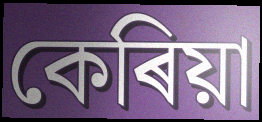
কেৰিয়া